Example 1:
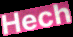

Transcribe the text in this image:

Hech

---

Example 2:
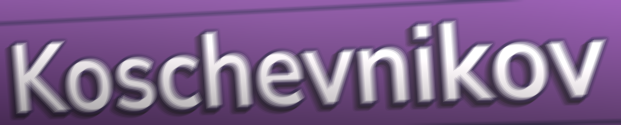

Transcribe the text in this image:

Koschevnikov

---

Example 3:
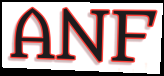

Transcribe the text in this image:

ANF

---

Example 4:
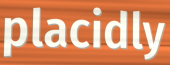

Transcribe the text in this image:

placidly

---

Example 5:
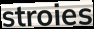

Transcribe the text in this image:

stroies